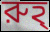
রুহ্